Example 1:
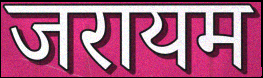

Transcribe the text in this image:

जरायम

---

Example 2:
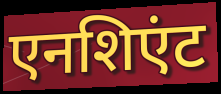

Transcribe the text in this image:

एनशिएंट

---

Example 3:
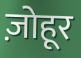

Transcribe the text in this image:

ज़ोहूर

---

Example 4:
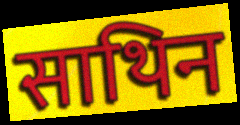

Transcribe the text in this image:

साथिन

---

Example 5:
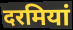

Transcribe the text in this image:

दरमियां